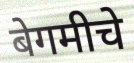
बेगमीचे